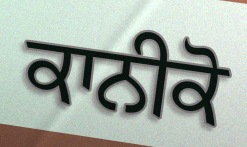
ਕਾਨੀਕੋ